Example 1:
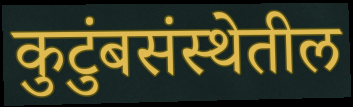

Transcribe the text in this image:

कुटुंबसंस्थेतील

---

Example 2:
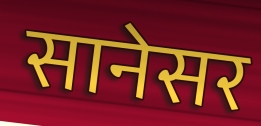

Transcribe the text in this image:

सानेसर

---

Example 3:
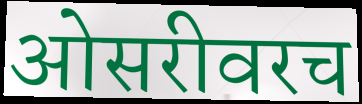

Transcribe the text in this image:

ओसरीवरच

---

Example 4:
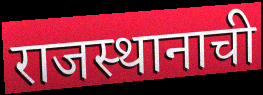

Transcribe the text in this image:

राजस्थानाची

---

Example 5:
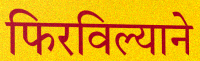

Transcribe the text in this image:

फिरविल्याने